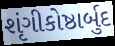
શૃંગીકોષ્ઠાર્બુદ